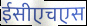
ईसीएचएस